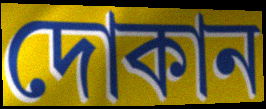
দোকান